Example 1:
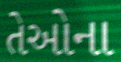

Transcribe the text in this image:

તેઓના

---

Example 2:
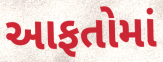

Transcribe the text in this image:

આફતોમાં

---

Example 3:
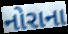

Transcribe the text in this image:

નોરાના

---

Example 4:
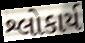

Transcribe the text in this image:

શ્લોકાર્ય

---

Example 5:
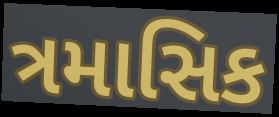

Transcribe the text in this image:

ત્રમાસિક